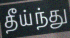
தீய்ந்து